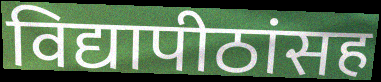
विद्यापीठांसह